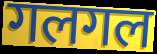
गलगल